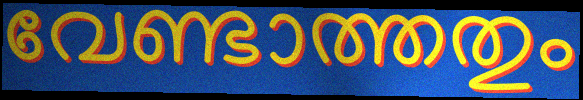
വേണ്ടാത്തതും